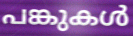
പങ്കുകൾ